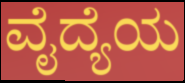
ವೈದ್ಯೆಯ